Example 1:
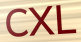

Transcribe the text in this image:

CXL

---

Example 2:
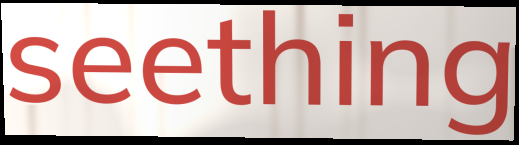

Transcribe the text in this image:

seething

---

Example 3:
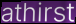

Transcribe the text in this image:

athirst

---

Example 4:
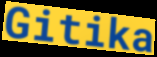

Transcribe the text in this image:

Gitika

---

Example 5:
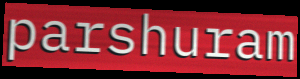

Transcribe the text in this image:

parshuram